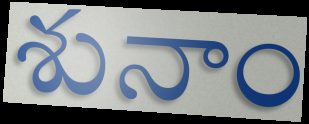
శునాం